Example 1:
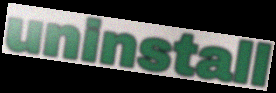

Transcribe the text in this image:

uninstall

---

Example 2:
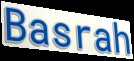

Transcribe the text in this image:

Basrah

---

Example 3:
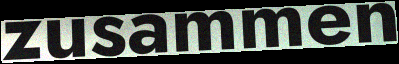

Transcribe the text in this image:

zusammen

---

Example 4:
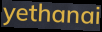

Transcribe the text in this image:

yethanai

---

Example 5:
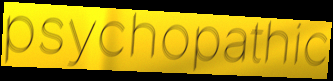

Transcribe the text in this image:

psychopathic